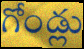
గోండ్లు